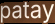
patay